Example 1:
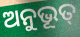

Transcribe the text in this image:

ଅନୁଭୂତ୍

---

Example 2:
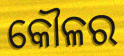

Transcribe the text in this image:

କୌଳର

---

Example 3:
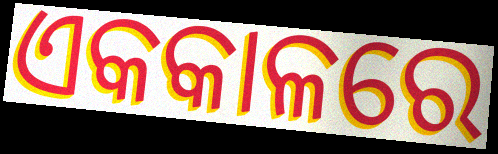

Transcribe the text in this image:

ଏକକାଳରେ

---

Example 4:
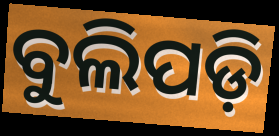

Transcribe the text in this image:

ବୁଲିପଡ଼ି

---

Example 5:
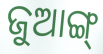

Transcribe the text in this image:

ଜୁଆଙ୍ଗ୍